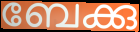
ബേക്കു